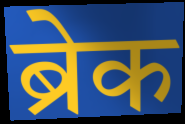
ब्रेक